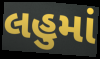
લહુમાં